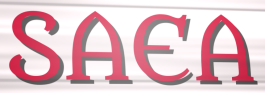
SAEA